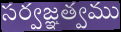
సర్వజ్ఞత్వము